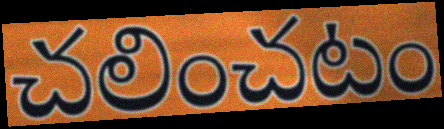
చలించటం